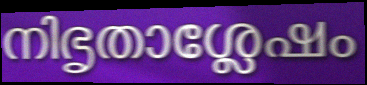
നിഭൃതാശ്ലേഷം